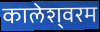
कालेश्वरम